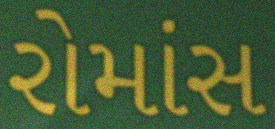
રોમાંસ